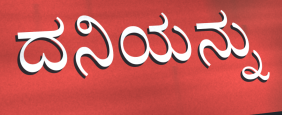
ದನಿಯನ್ನು